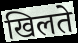
खिलते